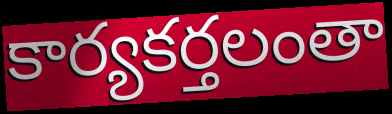
కార్యకర్తలంతా